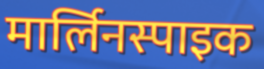
मार्लिनस्पाइक